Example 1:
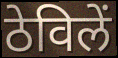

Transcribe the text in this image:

ठेविलें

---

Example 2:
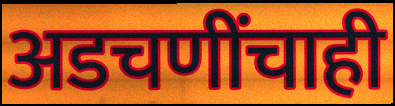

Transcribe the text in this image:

अडचणींचाही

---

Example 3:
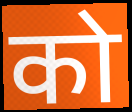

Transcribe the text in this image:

को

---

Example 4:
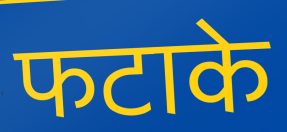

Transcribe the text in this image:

फटाके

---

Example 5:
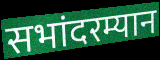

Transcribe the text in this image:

सभांदरम्यान